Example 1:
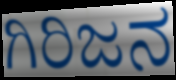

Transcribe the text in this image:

ಗಿರಿಜನ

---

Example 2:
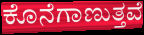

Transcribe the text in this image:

ಕೊನೆಗಾಣುತ್ತವೆ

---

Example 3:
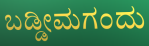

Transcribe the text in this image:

ಬಡ್ಡೀಮಗಂದು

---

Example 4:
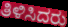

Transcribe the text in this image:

ತಿಳಿಸಿದರು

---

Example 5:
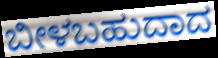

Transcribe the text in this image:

ಬೀಳಬಹುದಾದ